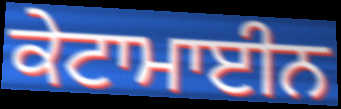
ਕੇਟਾਮਾਈਨ